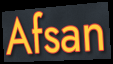
Afsan